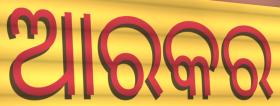
ଆରକର